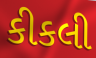
કીકલી